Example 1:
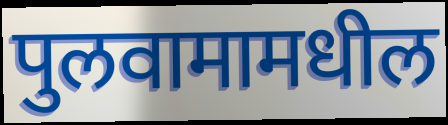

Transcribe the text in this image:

पुलवामामधील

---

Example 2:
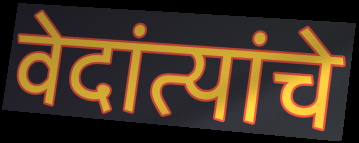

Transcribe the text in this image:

वेदांत्यांचे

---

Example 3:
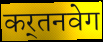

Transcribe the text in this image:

कर्तनवेग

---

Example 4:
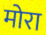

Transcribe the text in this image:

मोरा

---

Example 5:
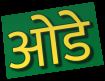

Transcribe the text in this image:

ओडे